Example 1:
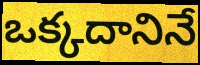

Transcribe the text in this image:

ఒక్కదానినే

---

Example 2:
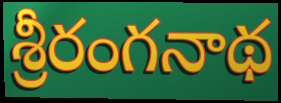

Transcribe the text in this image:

శ్రీరంగనాథ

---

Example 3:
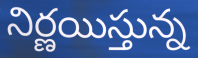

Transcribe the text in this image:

నిర్ణయిస్తున్న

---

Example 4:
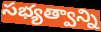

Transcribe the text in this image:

సభ్యత్వాన్ని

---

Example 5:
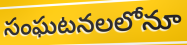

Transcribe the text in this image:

సంఘటనలలోనూ